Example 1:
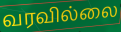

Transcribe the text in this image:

வரவில்லை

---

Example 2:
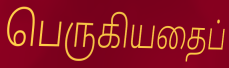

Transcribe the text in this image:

பெருகியதைப்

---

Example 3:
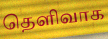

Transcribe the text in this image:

தெளிவாக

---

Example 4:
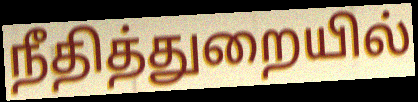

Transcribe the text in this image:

நீதித்துறையில்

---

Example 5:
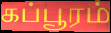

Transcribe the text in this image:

கப்பூரம்